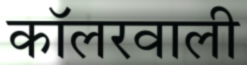
कॉलरवाली